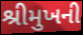
શ્રીમુખની